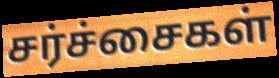
சர்ச்சைகள்